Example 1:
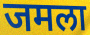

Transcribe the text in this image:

जमला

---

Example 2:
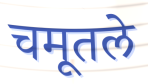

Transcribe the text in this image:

चमूतले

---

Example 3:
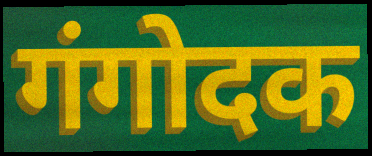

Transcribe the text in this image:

गंगोदक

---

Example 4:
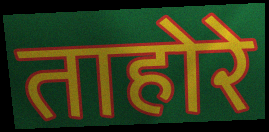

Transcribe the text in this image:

ताहोरे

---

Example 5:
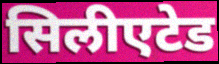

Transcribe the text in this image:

सिलीएटेड